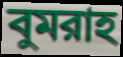
বুমরাহ